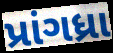
પ્રાંગધ્રા